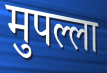
मुपल्ला